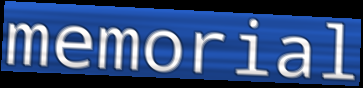
memorial